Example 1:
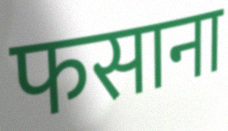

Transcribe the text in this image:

फसाना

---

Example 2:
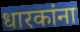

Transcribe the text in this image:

धारकांना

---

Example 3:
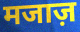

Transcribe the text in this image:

मजाज़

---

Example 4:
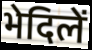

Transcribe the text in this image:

भेदिलें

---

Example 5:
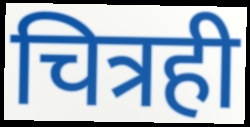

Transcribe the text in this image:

चित्रही